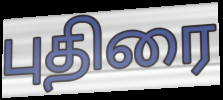
புதிரை